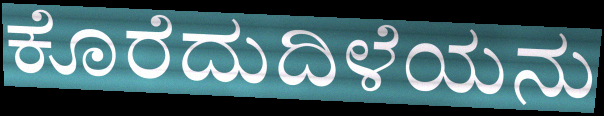
ಕೊರೆದುದಿಳೆಯನು